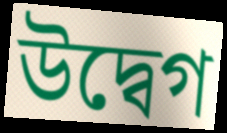
উদ্বেগ